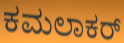
ಕಮಲಾಕರ್